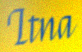
Itna